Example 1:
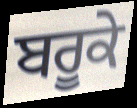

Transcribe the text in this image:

ਬਰੂਕੇ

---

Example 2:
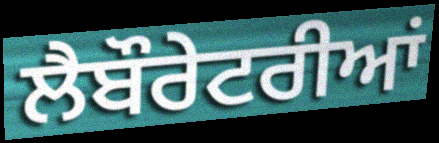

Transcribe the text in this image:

ਲੈਬੌਰੇਟਰੀਆਂ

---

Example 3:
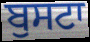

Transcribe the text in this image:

ਬੁਸਟਾ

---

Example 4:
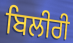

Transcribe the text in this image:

ਬਿਲੀਰੀ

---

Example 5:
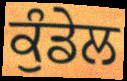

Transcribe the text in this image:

ਕੁੰਡੇਲ